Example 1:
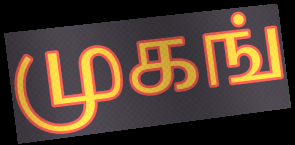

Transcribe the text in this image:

முகங்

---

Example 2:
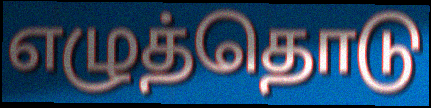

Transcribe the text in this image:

எழுத்தொடு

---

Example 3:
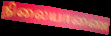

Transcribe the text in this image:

நிலையாணை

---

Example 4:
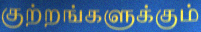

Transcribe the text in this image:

குற்றங்களுக்கும்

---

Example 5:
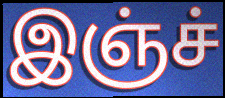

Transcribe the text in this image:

இஞ்ச்